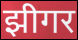
झीगर